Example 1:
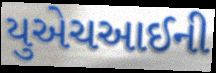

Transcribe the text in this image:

યુએચઆઈની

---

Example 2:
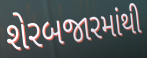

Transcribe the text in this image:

શેરબજારમાંથી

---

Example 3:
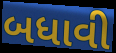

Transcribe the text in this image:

બધાવી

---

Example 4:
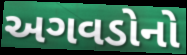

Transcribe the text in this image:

અગવડોનો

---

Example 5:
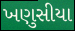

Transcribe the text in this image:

ખણુસીયા